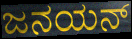
ಜನಯನ್